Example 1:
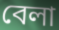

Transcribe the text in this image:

বেলা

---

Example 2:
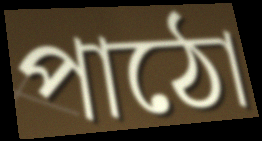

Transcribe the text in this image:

পাঠো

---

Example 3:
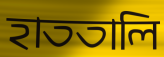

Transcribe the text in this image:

হাততালি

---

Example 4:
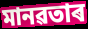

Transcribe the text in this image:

মানৱতাৰ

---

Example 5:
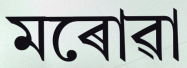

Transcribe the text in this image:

মৰোৱা